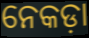
ନେକଡ଼ା